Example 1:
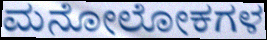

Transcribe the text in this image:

ಮನೋಲೋಕಗಳ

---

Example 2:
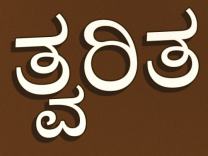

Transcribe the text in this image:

ತ್ವರಿತ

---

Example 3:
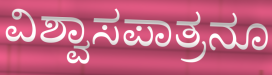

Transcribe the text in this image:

ವಿಶ್ವಾಸಪಾತ್ರನೂ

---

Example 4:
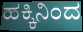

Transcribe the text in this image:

ಹಕ್ಕಿನಿಂದ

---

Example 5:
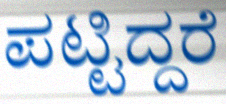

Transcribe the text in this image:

ಪಟ್ಟಿದ್ದರೆ